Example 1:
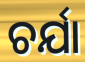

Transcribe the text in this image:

ଚର୍ଯା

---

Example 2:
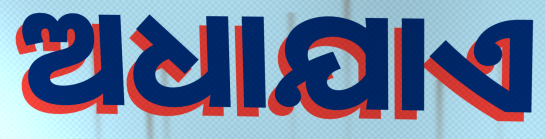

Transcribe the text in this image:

ଅଧାଯାଏ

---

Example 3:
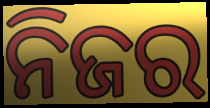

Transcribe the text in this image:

ନିଜର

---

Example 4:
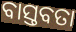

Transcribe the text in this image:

ବାସ୍ତବତା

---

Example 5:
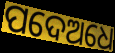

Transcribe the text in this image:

ପଦେଅଧେ